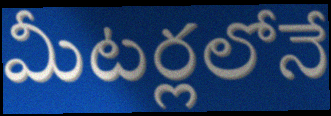
మీటర్లలోనే